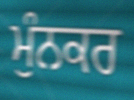
ਮੁੰਨਕਰ